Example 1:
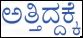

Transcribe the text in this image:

ಅತ್ತಿದ್ದಕ್ಕೆ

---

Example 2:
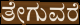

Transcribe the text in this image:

ತೇಗುವರೆ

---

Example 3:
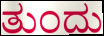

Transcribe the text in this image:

ತುಂದು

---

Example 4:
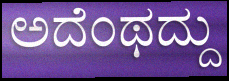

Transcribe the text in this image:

ಅದೆಂಥದ್ದು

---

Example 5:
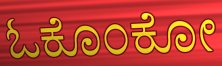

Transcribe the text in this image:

ಓಕೊಂಕೋ